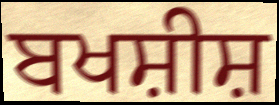
ਬਖਸ਼ੀਸ਼